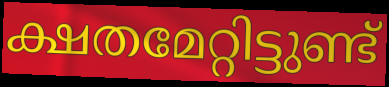
ക്ഷതമേറ്റിട്ടുണ്ട്